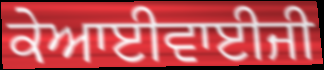
ਕੇਆਈਵਾਈਜੀ